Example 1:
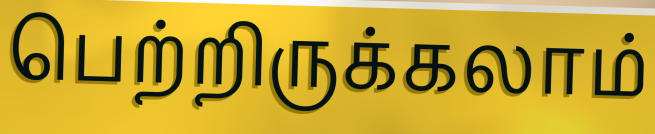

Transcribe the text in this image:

பெற்றிருக்கலாம்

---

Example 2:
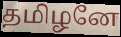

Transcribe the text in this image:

தமிழனே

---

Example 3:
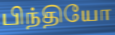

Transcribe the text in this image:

பிந்தியோ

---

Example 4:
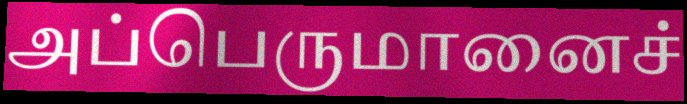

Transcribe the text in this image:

அப்பெருமானைச்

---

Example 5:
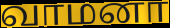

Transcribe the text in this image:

வாமனா